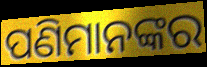
ପଣିମାନଙ୍କର